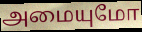
அமையுமோ